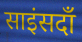
साइंसदाँ